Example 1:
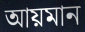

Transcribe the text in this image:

আয়মান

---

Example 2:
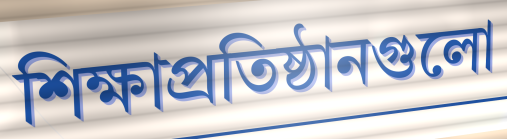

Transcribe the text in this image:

শিক্ষাপ্রতিষ্ঠানগুলো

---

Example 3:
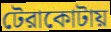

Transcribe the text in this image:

টেরাকোটায়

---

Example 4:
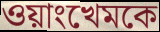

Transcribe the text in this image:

ওয়াংখেমকে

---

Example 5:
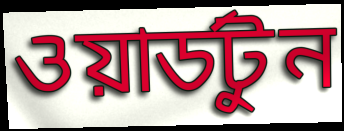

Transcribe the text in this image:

ওয়ার্ডটুন